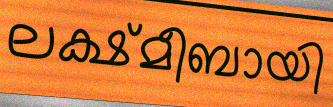
ലക്ഷ്മീബായി